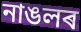
নাঙলৰ